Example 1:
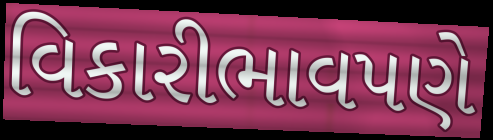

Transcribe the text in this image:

વિકારીભાવપણે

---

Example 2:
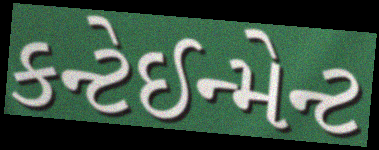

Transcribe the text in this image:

કન્ટેઈન્મેન્ટ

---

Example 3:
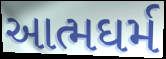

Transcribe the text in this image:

આત્મઘર્મ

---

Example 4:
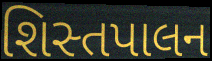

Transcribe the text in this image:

શિસ્તપાલન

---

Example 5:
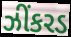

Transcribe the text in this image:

ઝીંકરડ